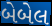
બેબેલ